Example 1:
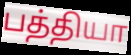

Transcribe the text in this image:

பத்தியா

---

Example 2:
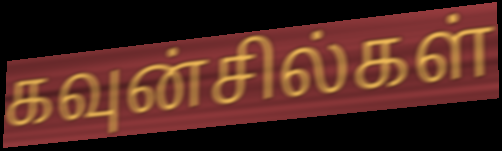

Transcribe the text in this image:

கவுன்சில்கள்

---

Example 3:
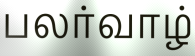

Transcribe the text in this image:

பலர்வாழ்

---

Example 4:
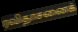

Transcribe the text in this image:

ரவிதாசனைக்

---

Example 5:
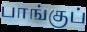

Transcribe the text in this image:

பாங்குப்